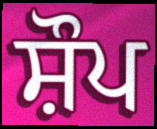
ਸ਼ੌਪ